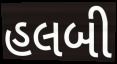
હલબી